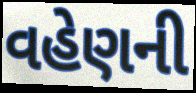
વહેણની